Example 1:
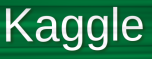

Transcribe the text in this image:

Kaggle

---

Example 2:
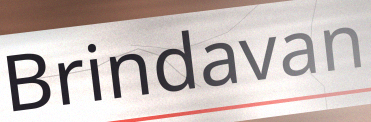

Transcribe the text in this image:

Brindavan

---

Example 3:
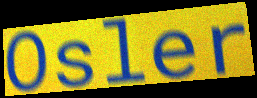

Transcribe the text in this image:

Osler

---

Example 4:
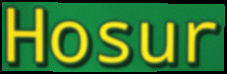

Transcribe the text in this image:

Hosur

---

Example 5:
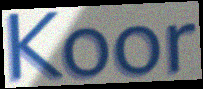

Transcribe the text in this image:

Koor